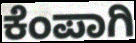
ಕೆಂಪಾಗಿ